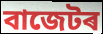
বাজেটৰ